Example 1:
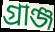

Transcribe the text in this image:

গ্রাঞ্জ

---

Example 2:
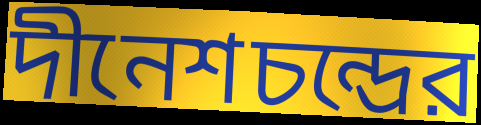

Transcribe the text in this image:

দীনেশচন্দ্রের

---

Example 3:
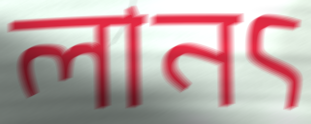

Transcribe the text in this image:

লানৎ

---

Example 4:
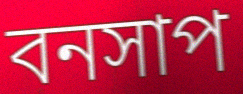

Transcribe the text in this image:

বনসাপ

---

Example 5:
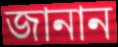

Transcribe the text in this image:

জানান